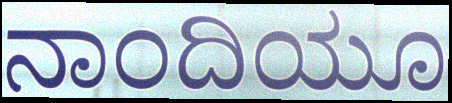
ನಾಂದಿಯೂ